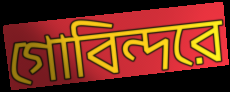
গোবিন্দরে